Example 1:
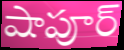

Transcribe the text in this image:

షాపూర్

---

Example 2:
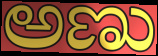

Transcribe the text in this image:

అణు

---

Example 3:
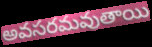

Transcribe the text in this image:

అవసరమవుతాయి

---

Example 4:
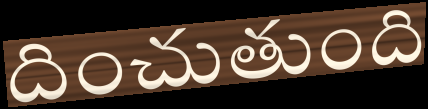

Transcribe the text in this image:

దించుతుంది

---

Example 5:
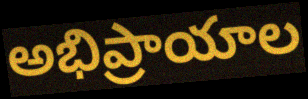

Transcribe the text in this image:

అభిప్రాయాల